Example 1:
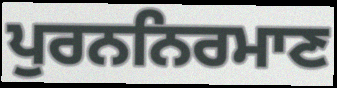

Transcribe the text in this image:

ਪੁਰਨਨਿਰਮਾਣ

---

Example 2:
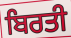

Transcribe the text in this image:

ਬਿਰਤੀ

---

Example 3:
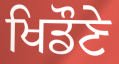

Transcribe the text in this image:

ਖਿਡੌਣੇ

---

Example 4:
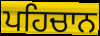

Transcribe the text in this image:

ਪਹਿਚਾਨ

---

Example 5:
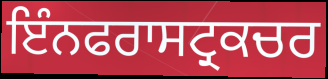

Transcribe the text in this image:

ਇੰਨਫਰਾਸਟ੍ਰਕਚਰ